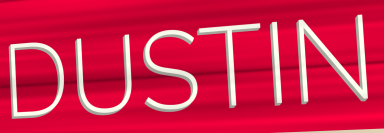
DUSTIN